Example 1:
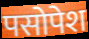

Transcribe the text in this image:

पसोपेश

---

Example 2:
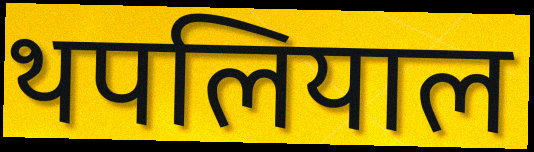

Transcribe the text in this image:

थपलियाल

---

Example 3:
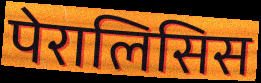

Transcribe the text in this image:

पेरालिसिस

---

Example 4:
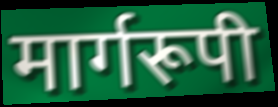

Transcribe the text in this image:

मार्गरूपी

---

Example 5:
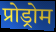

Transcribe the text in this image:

प्रोड्रोम